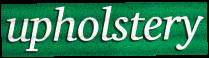
upholstery